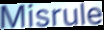
Misrule